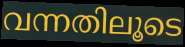
വന്നതിലൂടെ